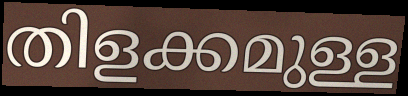
തിളക്കമുള്ള